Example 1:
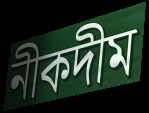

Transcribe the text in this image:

নীকদীম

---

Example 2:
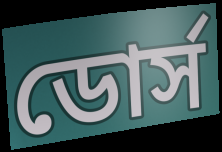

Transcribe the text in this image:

ডোর্স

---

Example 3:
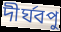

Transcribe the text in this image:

দীর্ঘবপু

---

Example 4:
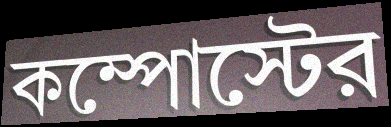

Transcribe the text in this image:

কম্পোস্টের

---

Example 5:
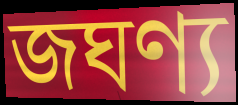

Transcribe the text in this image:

জঘণ্য